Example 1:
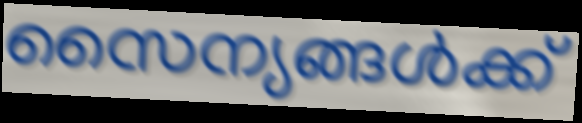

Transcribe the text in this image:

സൈന്യങ്ങൾക്ക്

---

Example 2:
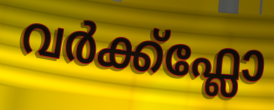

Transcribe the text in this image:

വർക്ക്ഫ്ലോ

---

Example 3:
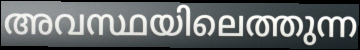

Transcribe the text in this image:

അവസ്ഥയിലെത്തുന്ന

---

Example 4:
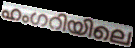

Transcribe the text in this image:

ഹംഗറിയിലെ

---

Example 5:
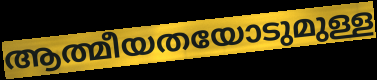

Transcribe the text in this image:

ആത്മീയതയോടുമുള്ള